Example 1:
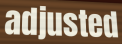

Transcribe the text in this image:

adjusted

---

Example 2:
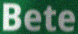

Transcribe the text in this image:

Bete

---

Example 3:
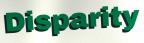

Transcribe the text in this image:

Disparity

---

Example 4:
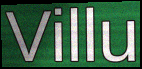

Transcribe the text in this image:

Villu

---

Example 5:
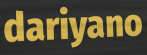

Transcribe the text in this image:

dariyano